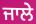
ਜਾਲੇ